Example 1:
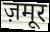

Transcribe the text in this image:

ज़मूर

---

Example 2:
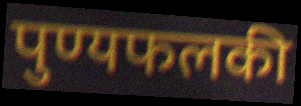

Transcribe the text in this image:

पुण्यफलकी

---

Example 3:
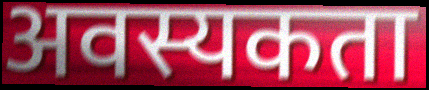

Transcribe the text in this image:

अवस्यकता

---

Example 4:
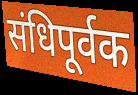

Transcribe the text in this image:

संधिपूर्वक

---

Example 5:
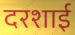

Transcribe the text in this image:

दरशाई